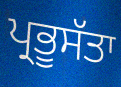
ਪ੍ਰਭੂਸੱਤਾ